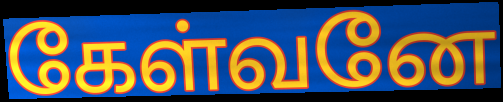
கேள்வனே